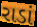
રાડાં